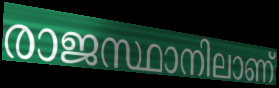
രാജസ്ഥാനിലാണ്